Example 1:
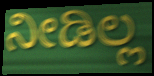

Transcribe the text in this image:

ನೀಡಿಲ್ಲ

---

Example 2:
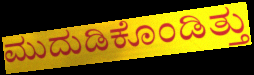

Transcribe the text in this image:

ಮುದುಡಿಕೊಂಡಿತ್ತು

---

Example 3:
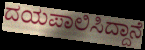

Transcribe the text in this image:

ದಯಪಾಲಿಸಿದ್ದಾನೆ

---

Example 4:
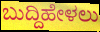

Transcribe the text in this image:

ಬುದ್ದಿಹೇಳಲು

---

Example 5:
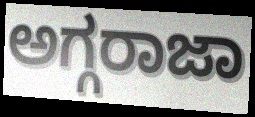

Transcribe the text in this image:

ಅಗ್ಗರಾಜಾ